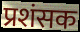
प्रशंसक